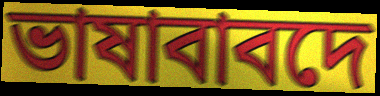
ভাষাবাবদে